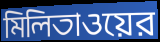
মিলিতাওয়ের